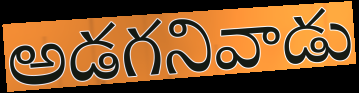
అడగనివాడు